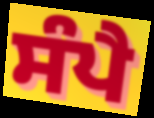
ਸੰਪੈ